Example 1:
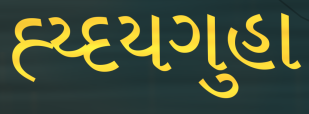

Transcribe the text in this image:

હ્ય્દયગુહા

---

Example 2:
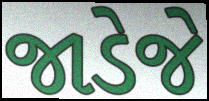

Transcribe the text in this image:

જાડેજે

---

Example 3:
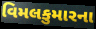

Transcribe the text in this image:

વિમલકુમારના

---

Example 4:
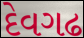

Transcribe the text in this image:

દેવગઢ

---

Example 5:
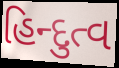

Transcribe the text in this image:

હિન્દુત્વ